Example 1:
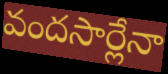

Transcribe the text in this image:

వందసార్లేనా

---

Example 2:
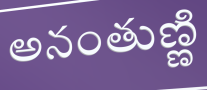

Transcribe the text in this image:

అనంతుణ్ణి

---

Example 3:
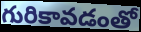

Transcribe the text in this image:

గురికావడంతో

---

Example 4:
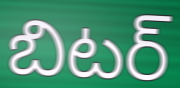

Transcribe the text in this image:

బిటర్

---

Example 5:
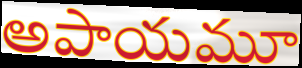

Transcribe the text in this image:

అపాయమూ